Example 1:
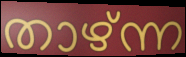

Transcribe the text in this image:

താഴ്ന്ന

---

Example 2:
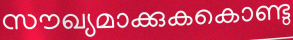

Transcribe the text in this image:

സൗഖ്യമാക്കുകകൊണ്ടു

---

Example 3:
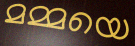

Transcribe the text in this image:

മമ്മയെ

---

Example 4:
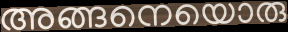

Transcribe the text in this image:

അങ്ങനെയൊരു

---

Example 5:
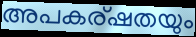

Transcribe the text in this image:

അപകര്ഷതയും